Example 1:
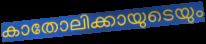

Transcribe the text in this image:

കാതോലിക്കായുടെയും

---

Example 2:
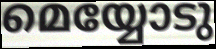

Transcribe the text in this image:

മെയ്യോടു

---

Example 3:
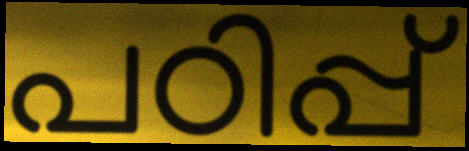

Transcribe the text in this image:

പഠിപ്പ്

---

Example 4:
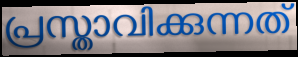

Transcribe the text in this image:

പ്രസ്താവിക്കുന്നത്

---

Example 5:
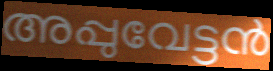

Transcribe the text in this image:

അപ്പുവേട്ടൻ